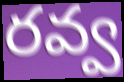
రవ్వ